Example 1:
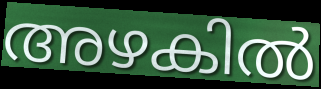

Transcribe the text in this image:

അഴകിൽ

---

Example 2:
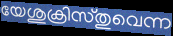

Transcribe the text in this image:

യേശുക്രിസ്തുവെന്ന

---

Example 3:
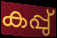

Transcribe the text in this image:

കപ്പു്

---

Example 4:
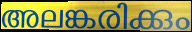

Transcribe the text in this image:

അലങ്കരിക്കും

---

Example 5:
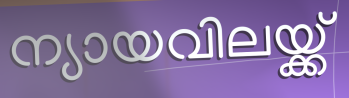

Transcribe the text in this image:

ന്യായവിലയ്ക്ക്